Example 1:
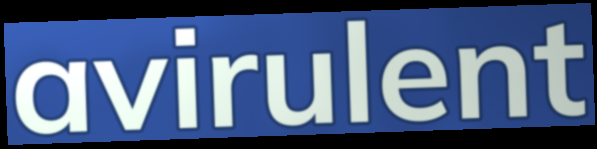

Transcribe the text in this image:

avirulent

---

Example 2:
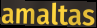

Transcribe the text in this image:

amaltas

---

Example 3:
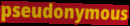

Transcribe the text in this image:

pseudonymous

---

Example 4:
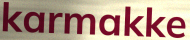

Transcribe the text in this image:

karmakke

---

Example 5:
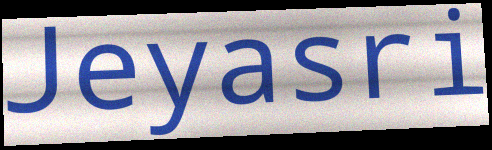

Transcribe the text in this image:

Jeyasri